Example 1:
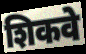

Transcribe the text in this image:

शिकवे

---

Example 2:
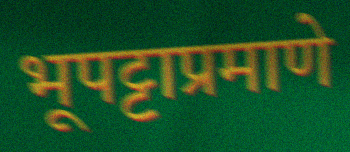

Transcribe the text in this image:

भूपट्टाप्रमाणे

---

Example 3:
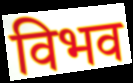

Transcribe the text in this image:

विभव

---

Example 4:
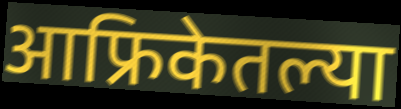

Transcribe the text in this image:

आफ्रिकेतल्या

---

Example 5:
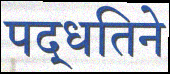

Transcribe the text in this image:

पद्धतिने